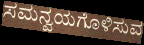
ಸಮನ್ವಯಗೊಳಿಸುವ